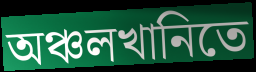
অঞ্চলখানিতে